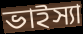
ভাইস্যা